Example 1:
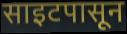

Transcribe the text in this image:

साइटपासून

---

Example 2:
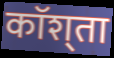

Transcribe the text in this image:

कॉश्ता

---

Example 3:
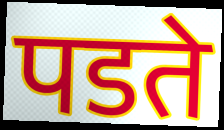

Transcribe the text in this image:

पडते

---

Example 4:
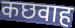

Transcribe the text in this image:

कछवाह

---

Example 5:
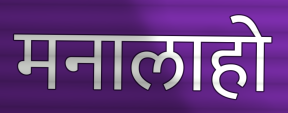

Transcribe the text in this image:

मनालाहो